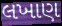
લખાણ